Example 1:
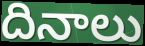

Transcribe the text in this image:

దినాలు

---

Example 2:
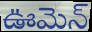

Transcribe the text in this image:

ఊమెన్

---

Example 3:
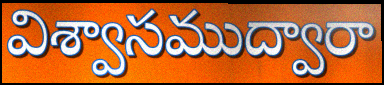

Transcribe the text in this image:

విశ్వాసముద్వారా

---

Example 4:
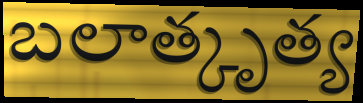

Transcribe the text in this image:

బలాత్కృత్య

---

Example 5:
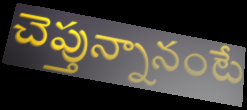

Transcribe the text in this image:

చెప్తున్నానంటే